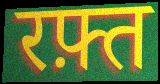
रफ़्त